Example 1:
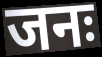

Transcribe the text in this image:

जनः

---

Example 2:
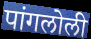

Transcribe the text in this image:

पांगलोली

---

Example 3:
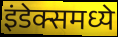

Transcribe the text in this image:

इंडेक्समध्ये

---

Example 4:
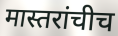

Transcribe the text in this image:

मास्तरांचीच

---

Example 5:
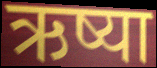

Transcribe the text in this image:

ऋष्या